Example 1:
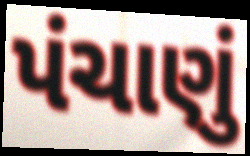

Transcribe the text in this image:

પંચાણું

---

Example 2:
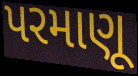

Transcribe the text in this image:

પરમાણૂ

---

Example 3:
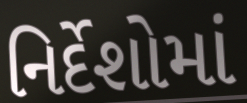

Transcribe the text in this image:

નિર્દેશોમાં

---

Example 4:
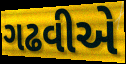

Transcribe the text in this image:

ગઢવીએ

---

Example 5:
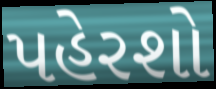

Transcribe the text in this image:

પહેરશો